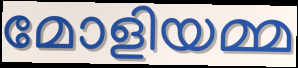
മോളിയമ്മ